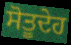
ਸੋਤੂਦੇਹ